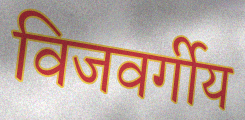
विजवर्गीय